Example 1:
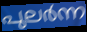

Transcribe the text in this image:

പുലർന്ന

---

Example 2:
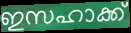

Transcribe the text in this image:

ഇസഹാക്ക്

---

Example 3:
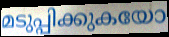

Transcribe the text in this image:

മടുപ്പിക്കുകയോ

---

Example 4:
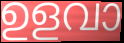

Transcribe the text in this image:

ഉളവാ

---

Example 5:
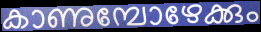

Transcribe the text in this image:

കാണുമ്പോഴേക്കും